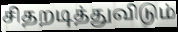
சிதறடித்துவிடும்